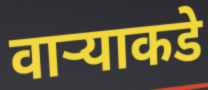
वाऱ्याकडे